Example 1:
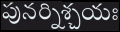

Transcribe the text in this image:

పునర్నిశ్చయః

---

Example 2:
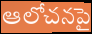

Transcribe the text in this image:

ఆలోచనపై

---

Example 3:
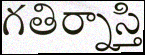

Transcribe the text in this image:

గతిర్నాస్తి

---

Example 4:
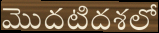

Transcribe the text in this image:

మొదటిదశలో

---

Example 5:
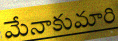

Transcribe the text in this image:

మేనాకుమారి